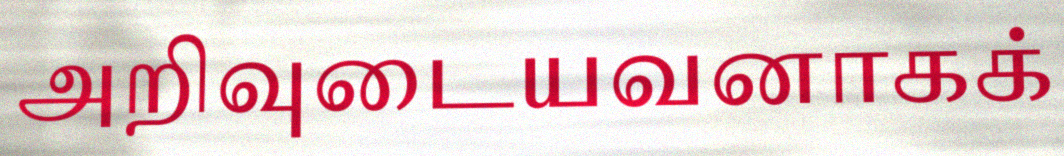
அறிவுடையவனாகக்